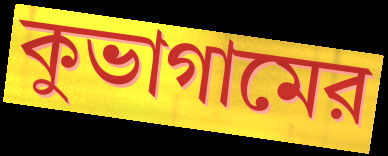
কুভাগামের